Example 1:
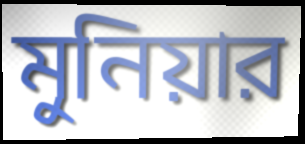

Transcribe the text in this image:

মুনিয়ার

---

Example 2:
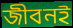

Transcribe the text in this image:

জীবনই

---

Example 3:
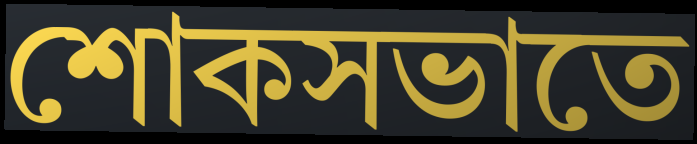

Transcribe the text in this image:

শোকসভাতে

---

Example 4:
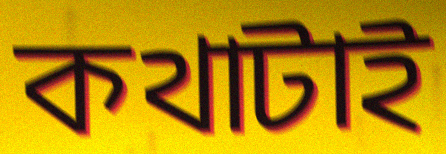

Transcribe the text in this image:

কথাটাই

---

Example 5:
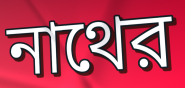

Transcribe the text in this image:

নাথের